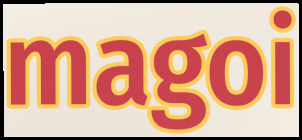
magoi